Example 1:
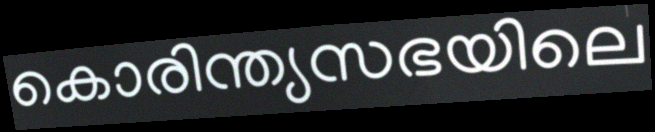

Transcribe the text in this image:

കൊരിന്ത്യസഭയിലെ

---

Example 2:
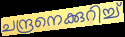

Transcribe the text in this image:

ചന്ദ്രനെക്കുറിച്ച്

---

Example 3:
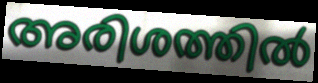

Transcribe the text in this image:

അരിശത്തിൽ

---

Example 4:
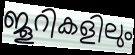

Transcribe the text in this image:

ജൂറികളിലും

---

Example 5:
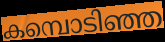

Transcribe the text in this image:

കമ്പൊടിഞ്ഞ